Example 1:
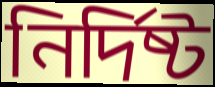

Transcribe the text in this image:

নিৰ্দিষ্ট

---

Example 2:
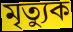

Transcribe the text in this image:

মৃত্যুক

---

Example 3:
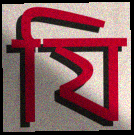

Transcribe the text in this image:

যি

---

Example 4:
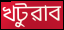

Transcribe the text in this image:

খটুৱাব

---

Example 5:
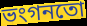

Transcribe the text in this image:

ভংগনতো